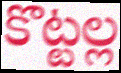
కొట్టల్ల